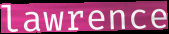
lawrence